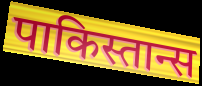
पाकिस्तान्स